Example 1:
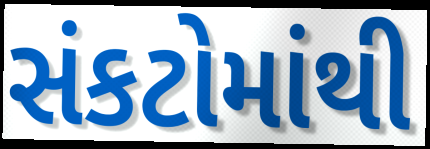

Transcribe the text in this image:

સંકટોમાંથી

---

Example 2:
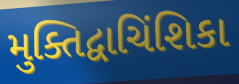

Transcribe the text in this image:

મુક્તિદ્વાચિંશિકા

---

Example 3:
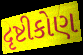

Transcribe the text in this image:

દૃષ્ટીકોણ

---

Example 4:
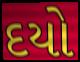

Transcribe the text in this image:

દયો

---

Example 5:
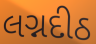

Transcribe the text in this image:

લગ્નદીઠ